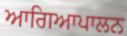
ਆਗਿਆਪਾਲਨ